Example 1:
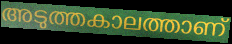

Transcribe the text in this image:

അടുത്തകാലത്താണ്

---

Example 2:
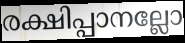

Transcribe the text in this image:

രക്ഷിപ്പാനല്ലോ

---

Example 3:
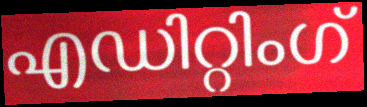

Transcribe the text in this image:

എഡിറ്റിംഗ്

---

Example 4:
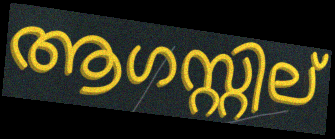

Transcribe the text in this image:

ആഗസ്റ്റില്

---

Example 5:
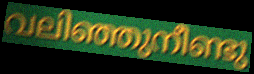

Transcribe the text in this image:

വലിഞ്ഞുനീണ്ടു